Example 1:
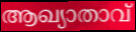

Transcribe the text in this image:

ആഖ്യാതാവ്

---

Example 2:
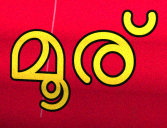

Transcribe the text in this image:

മൂര്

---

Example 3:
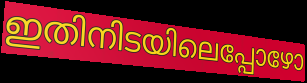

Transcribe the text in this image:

ഇതിനിടയിലെപ്പോഴോ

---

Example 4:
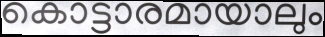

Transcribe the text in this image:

കൊട്ടാരമായാലും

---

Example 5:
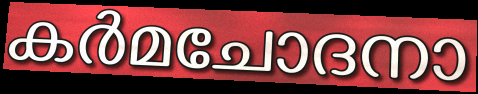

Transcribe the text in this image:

കർമചോദനാ